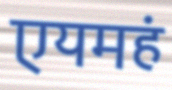
एयमहं